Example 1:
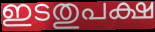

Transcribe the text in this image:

ഇടതുപക്ഷ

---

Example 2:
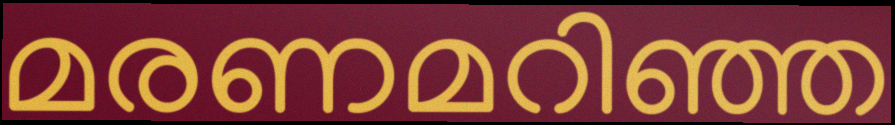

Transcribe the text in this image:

മരണമറിഞ്ഞ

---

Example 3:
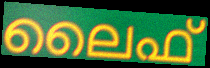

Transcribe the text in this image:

ലൈഫ്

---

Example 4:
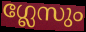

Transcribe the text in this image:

ഗ്ലേസും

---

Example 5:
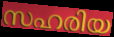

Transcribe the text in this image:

സഹരിയ